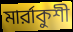
মার্রাকুশী